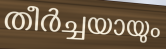
തീർച്ചയായും